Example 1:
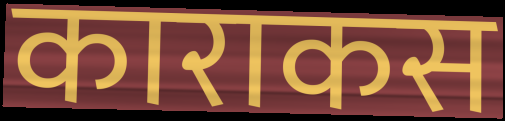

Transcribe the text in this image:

काराकस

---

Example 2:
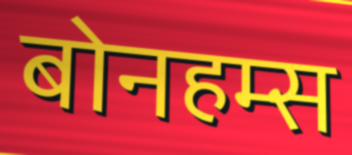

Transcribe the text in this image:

बोनहम्स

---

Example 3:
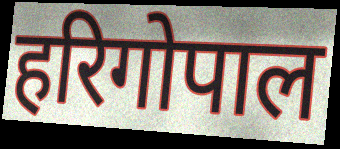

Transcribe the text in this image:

हरिगोपाल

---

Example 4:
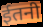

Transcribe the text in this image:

ईतनी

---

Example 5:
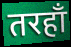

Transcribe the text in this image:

तरहाँ